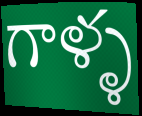
గాళ్ళ